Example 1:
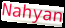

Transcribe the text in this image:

Nahyan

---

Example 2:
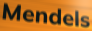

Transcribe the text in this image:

Mendels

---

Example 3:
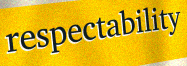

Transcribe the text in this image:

respectability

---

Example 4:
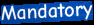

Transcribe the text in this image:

Mandatory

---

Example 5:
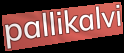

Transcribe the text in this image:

pallikalvi